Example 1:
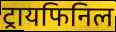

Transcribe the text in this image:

ट्रायफिनिल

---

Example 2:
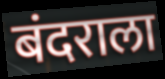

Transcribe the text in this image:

बंदराला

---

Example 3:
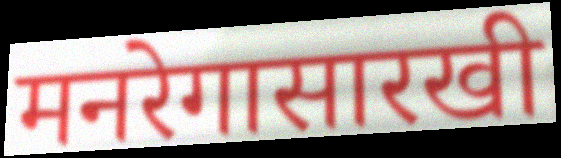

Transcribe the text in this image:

मनरेगासारखी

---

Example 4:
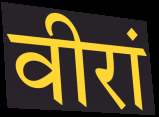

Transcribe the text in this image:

वीरां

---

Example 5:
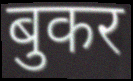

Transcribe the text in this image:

बुकर